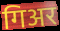
गिअर